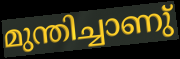
മുന്തിച്ചാണു്